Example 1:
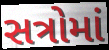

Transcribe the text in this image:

સત્રોમાં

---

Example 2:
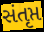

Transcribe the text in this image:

સંતૃપ્ત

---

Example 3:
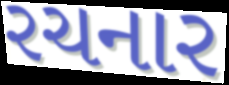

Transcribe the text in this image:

રચનાર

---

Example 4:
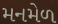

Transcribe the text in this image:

મનમેળ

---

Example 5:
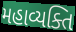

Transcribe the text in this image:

મહાવ્યક્તિ